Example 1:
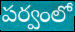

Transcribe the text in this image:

పర్వంలో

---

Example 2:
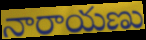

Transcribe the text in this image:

నారాయణు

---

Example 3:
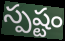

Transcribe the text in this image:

స్పష్టం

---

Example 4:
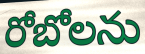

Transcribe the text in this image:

రోబోలను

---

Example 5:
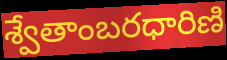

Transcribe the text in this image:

శ్వేతాంబరధారిణి